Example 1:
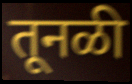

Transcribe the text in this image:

तूनळी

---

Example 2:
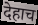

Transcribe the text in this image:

देहाच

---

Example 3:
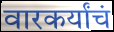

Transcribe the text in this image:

वारकर्यांचं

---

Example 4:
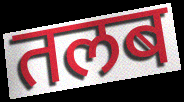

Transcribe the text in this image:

तलब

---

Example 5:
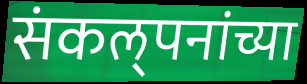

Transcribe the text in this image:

संकल्पनांच्या